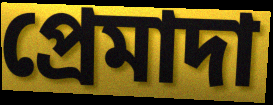
প্ৰেমাদা